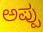
ಅಪ್ಪು